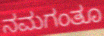
ನಮಗಂತೂ